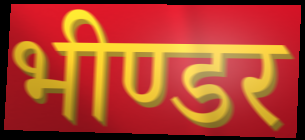
भीण्डर